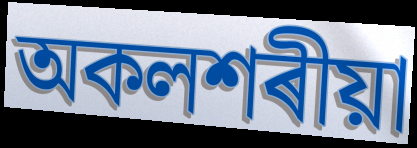
অকলশৰীয়া